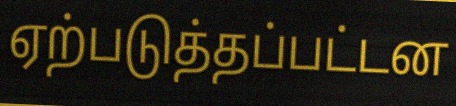
ஏற்படுத்தப்பட்டன